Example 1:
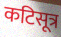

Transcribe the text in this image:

कटिसूत्र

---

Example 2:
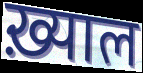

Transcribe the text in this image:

ख़्याल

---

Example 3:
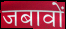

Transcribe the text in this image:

जबावों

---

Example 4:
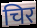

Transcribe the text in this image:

चिर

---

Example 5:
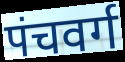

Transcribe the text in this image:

पंचवर्ग